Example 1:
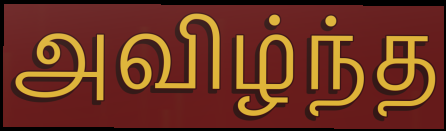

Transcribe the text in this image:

அவிழ்ந்த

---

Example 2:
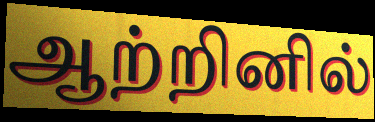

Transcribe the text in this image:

ஆற்றினில்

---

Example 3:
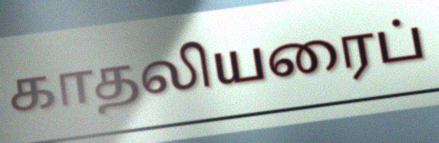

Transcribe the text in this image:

காதலியரைப்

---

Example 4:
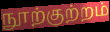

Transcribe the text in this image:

நூற்குற்றம்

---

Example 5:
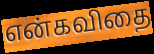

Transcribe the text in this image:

என்கவிதை